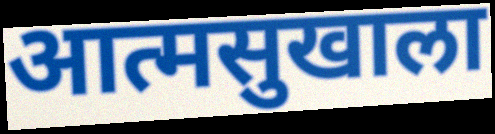
आत्मसुखाला